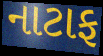
નાટાફ